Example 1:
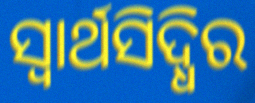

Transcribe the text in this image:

ସ୍ଵାର୍ଥସିଦ୍ଧିର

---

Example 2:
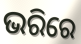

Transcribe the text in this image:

ଭରିରେ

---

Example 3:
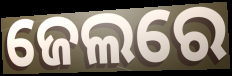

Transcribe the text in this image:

ଜେଲରେ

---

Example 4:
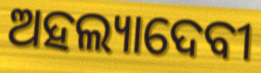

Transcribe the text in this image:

ଅହଲ୍ୟାଦେବୀ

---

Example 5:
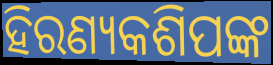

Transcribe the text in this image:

ହିରଣ୍ୟକଶିପଙ୍କ